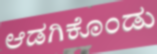
ಆಡಗಿಕೊಂಡು